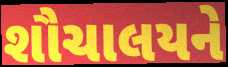
શૌચાલયને